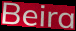
Beira